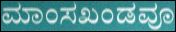
ಮಾಂಸಖಂಡವೂ